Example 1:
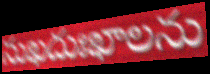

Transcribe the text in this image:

సుఖదుఃఖాలను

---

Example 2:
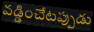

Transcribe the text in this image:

వడ్డించేటప్పుడు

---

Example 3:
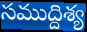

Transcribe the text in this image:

సముద్దిశ్య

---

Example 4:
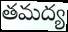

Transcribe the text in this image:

తమద్య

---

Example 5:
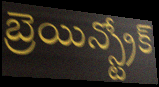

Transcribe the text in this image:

బ్రెయిన్స్ట్రోక్